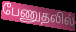
பேணுதலில்